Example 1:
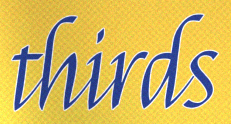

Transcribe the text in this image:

thirds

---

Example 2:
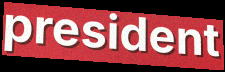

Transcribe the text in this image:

president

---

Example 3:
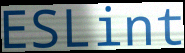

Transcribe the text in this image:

ESLint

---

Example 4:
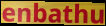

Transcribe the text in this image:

enbathu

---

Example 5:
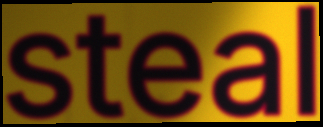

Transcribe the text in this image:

steal